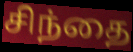
சிந்தை